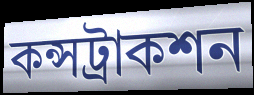
কন্সট্রাকশন